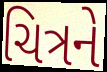
ચિત્રને